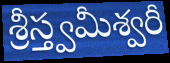
శ్రీస్త్వమీశ్వరీ